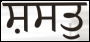
ਸ਼ਸਤੁ